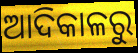
ଆଦିକାଳରୁ